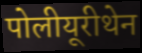
पोलीयूरीथेन